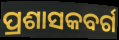
ପ୍ରଶାସକବର୍ଗ